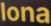
lona